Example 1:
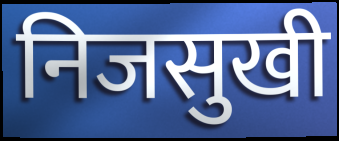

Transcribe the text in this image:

निजसुखी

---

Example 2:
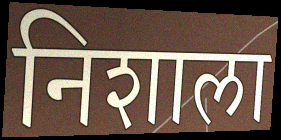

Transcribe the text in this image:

निशाला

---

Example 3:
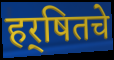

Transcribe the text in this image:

हर्षितचे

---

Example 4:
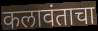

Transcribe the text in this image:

कलावंताचा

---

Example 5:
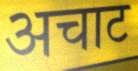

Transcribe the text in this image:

अचाट